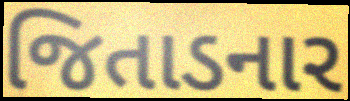
જિતાડનાર